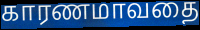
காரணமாவதை